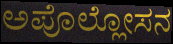
ಅಪೊಲ್ಲೋಸನ